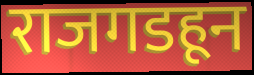
राजगडहून